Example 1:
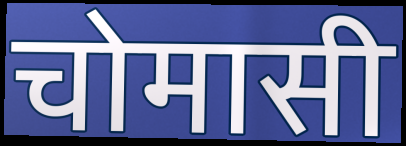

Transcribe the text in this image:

चोमासी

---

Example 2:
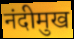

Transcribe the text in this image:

नंदीमुख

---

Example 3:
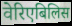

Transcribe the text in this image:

वेरिएबिलिस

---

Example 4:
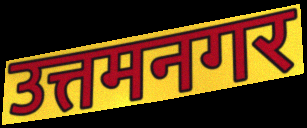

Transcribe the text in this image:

उत्तमनगर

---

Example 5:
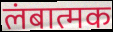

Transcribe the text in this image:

लंबात्मक